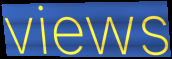
views